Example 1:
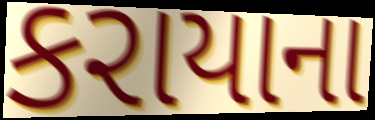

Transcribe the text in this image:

કરાયાના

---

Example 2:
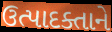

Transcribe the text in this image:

ઉત્પાદક્તાને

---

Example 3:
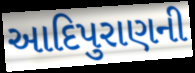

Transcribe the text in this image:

આદિપુરાણની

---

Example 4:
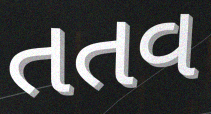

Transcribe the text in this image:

તતવ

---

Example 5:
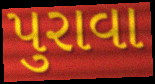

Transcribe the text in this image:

પુરાવા